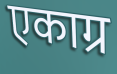
एकाग्र